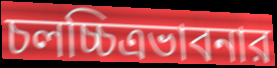
চলচ্চিত্রভাবনার